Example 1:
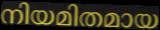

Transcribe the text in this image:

നിയമിതമായ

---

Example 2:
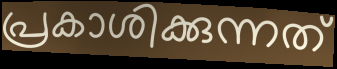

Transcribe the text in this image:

പ്രകാശിക്കുന്നത്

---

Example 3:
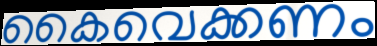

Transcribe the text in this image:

കൈവെക്കണം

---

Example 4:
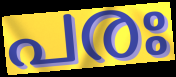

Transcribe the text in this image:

പരഃ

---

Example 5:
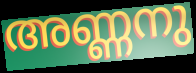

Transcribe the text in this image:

അണ്ണനു